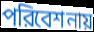
পরিবেশনায়